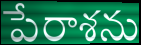
పేరాశను